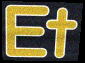
Et